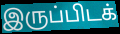
இருப்பிடக்